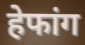
हेफांग